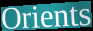
Orients